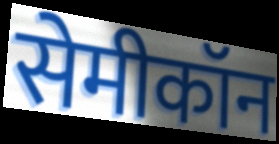
सेमीकॉन